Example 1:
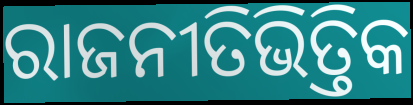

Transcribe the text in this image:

ରାଜନୀତିଭିତ୍ତିକ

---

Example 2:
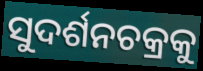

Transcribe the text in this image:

ସୁଦର୍ଶନଚକ୍ରକୁ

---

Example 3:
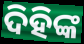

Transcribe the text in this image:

ଦିହିଙ୍କ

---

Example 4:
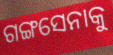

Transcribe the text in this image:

ଗଙ୍ଗସେନାକୁ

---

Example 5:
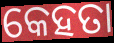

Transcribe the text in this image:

କେହତା